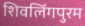
शिवलिंगपुरम